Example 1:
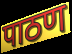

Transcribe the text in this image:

पाठण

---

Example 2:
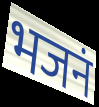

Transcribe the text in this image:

भजनं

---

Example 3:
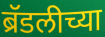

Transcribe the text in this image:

ब्रॅडलीच्या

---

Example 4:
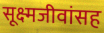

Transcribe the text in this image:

सूक्ष्मजीवांसह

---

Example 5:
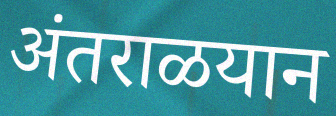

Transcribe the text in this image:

अंतराळयान